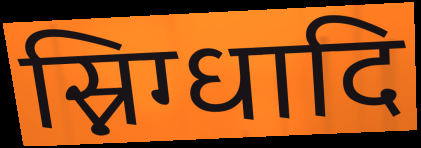
स्निग्धादि